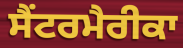
ਸੈਂਟਰਮੈਰੀਕਾ